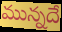
మున్నదే